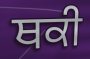
ਥਕੀ